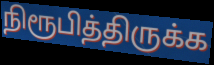
நிரூபித்திருக்க